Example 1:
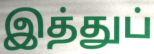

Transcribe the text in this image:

இத்துப்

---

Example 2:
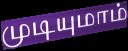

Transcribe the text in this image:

முடியுமாம்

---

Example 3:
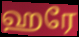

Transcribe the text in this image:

ஹரே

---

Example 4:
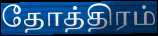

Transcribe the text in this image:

தோத்திரம்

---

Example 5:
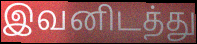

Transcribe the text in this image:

இவனிடத்து